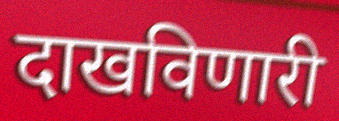
दाखविणारी